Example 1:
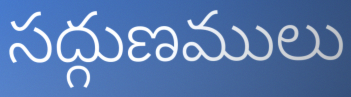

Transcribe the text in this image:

సద్గుణములు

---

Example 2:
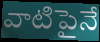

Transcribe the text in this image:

వాటిపైనే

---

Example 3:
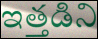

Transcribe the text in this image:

ఇత్తడిని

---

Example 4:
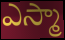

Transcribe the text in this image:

ఎస్మా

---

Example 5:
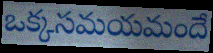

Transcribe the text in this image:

ఒక్కసమయమందే